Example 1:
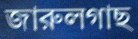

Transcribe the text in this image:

জারুলগাছ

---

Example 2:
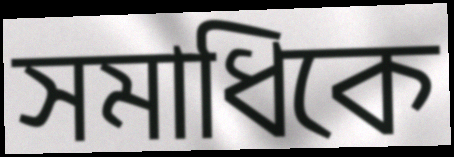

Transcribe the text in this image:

সমাধিকে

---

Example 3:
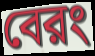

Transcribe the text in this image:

বেরং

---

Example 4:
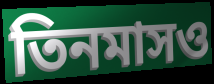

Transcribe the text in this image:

তিনমাসও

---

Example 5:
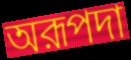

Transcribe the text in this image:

অরূপদা